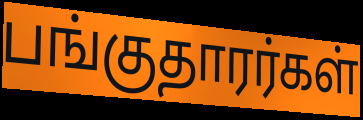
பங்குதாரர்கள்